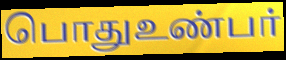
பொதுஉண்பர்